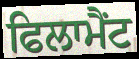
ਫਿਲਾਮੈਂਟ